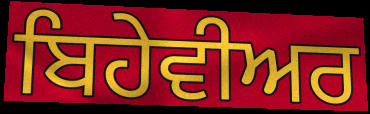
ਬਿਹੇਵੀਅਰ